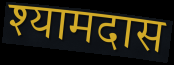
श्यामदास